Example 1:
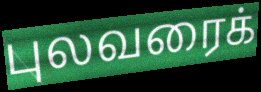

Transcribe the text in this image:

புலவரைக்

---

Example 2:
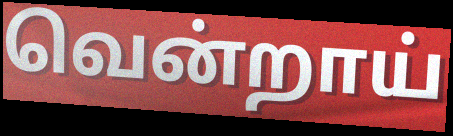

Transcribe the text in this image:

வென்றாய்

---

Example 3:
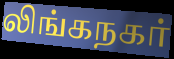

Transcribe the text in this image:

லிங்கநகர்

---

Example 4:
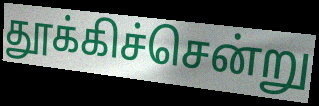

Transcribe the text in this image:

தூக்கிச்சென்று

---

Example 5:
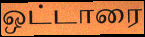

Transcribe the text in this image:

ஒட்டாரை